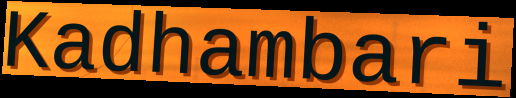
Kadhambari